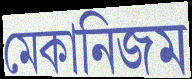
মেকানিজম